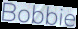
Bobbie